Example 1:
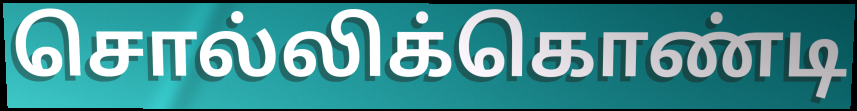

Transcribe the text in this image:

சொல்லிக்கொண்டி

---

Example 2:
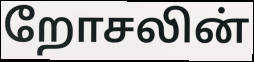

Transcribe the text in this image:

றோசலின்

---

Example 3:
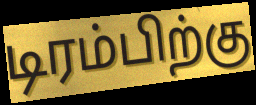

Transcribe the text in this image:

டிரம்பிற்கு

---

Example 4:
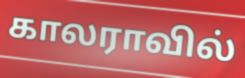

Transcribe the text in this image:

காலராவில்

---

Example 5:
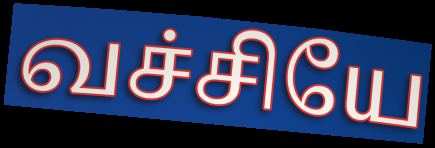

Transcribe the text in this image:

வச்சியே